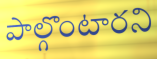
పాల్గొంటారని